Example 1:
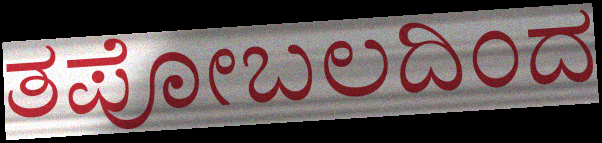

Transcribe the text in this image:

ತಪೋಬಲದಿಂದ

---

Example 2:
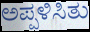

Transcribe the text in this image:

ಅಪ್ಪಳಿಸಿತು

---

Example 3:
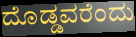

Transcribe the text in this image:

ದೊಡ್ಡವರೆಂದು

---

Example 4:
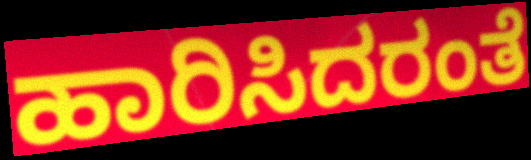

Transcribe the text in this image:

ಹಾರಿಸಿದರಂತೆ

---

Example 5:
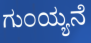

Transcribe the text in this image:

ಗುಂಯ್ಯನೆ